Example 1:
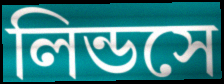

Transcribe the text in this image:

লিন্ডসে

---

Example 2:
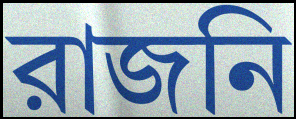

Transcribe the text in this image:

রাজনি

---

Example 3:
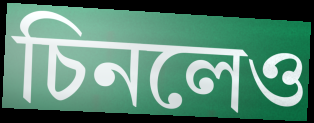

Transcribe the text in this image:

চিনলেও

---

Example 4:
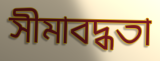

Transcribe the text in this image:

সীমাবদ্ধতা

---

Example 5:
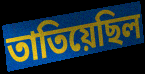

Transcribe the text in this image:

তাতিয়েছিল